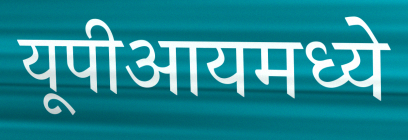
यूपीआयमध्ये